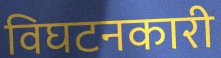
विघटनकारी